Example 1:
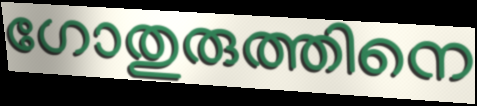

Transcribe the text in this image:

ഗോതുരുത്തിനെ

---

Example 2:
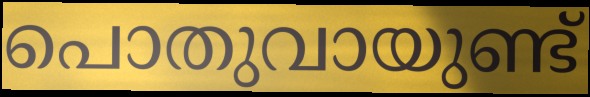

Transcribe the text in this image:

പൊതുവായുണ്ട്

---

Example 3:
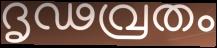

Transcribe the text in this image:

ദൃഢവ്രതം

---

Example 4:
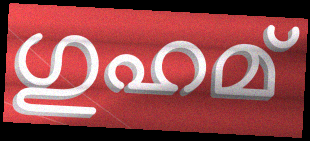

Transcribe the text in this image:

ഗുഹമ്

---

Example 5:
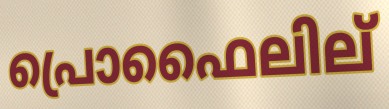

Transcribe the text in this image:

പ്രൊഫൈലില്